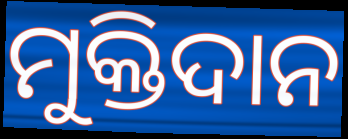
ମୁକ୍ତିଦାନ